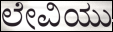
ಲೇವಿಯು